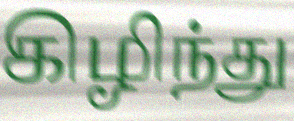
கிழிந்து